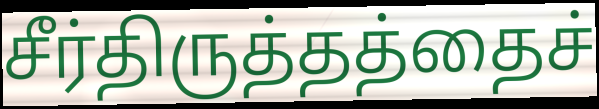
சீர்திருத்தத்தைச்